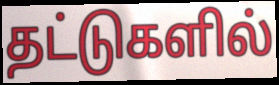
தட்டுகளில்